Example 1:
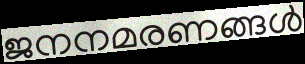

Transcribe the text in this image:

ജനനമരണങ്ങൾ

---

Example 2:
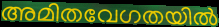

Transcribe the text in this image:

അമിതവേഗതയിൽ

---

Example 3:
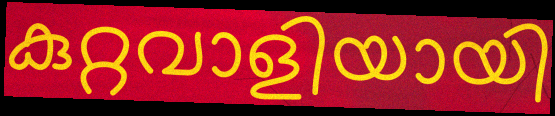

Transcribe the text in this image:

കുറ്റവാളിയായി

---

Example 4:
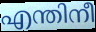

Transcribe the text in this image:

എന്തിനീ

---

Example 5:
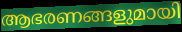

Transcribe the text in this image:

ആഭരണങ്ങളുമായി